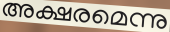
അക്ഷരമെന്നു